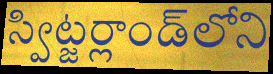
స్విట్జర్లాండ్‌లోని